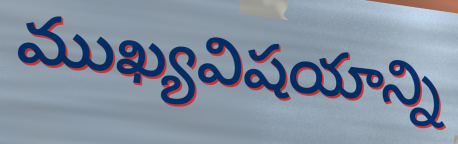
ముఖ్యవిషయాన్ని